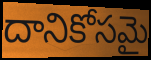
దానికోసమై